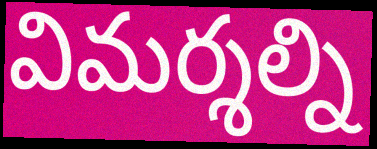
విమర్శల్ని